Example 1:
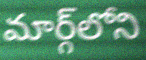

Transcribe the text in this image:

మార్గ్‌లోని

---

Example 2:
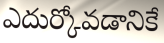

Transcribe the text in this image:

ఎదుర్కోవడానికే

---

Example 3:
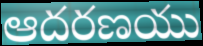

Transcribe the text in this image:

ఆదరణయు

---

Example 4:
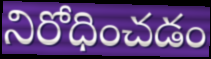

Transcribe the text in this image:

నిరోధించడం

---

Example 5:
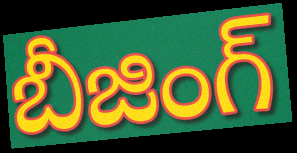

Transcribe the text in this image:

బీజింగ్